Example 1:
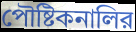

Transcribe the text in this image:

পৌষ্টিকনালির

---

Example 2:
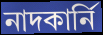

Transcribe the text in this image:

নাদকার্নি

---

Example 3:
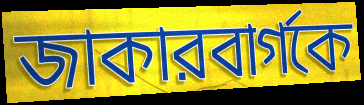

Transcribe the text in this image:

জাকারবার্গকে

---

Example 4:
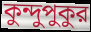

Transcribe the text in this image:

কুন্দুপুকুর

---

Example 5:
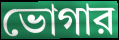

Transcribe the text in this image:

ভোগার